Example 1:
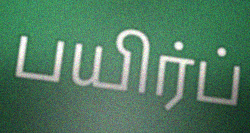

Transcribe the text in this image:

பயிர்ப்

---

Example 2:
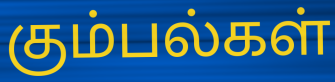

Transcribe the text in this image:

கும்பல்கள்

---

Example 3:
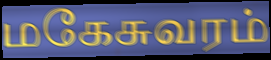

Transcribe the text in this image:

மகேசுவரம்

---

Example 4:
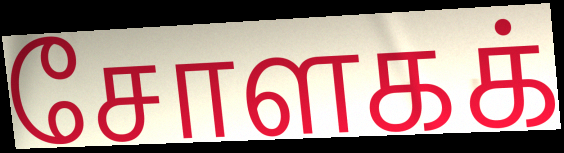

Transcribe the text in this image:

சோளகக்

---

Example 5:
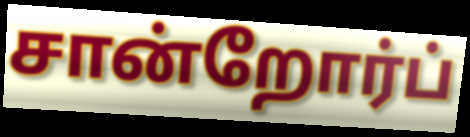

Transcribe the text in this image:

சான்றோர்ப்